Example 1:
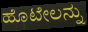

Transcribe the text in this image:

ಹೊಟೇಲನ್ನು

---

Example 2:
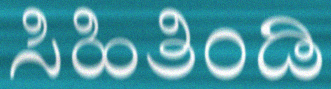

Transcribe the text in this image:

ಸಿಹಿತಿಂಡಿ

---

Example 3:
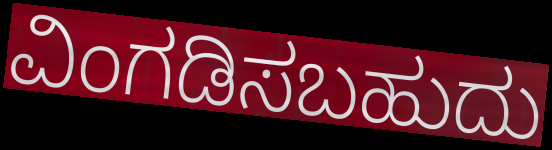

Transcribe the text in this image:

ವಿಂಗಡಿಸಬಹುದು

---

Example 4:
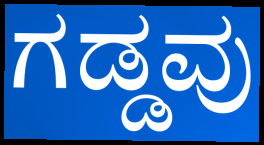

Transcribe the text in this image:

ಗಡ್ಡವು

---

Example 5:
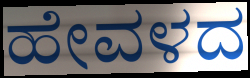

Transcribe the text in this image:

ಹೇವಳದ